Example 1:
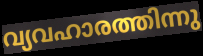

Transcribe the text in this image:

വ്യവഹാരത്തിന്നു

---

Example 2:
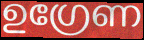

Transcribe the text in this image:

ഉഗ്രേണ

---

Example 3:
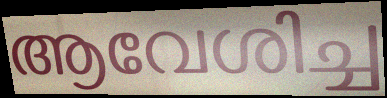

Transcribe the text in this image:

ആവേശിച്ച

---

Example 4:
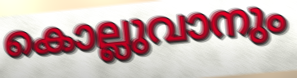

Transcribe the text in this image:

കൊല്ലുവാനും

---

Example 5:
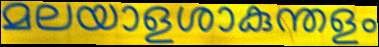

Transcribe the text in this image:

മലയാളശാകുന്തളം